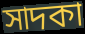
সাদকা